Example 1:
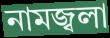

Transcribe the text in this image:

নামজ্বলা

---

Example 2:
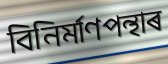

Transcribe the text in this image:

বিনিৰ্মাণপন্থাৰ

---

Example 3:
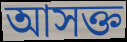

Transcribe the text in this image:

আসক্ত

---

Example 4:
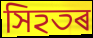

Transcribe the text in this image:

সিহতৰ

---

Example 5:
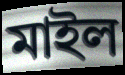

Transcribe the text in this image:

মাইল